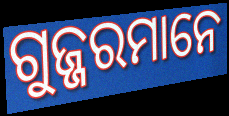
ଗୁଜ୍ଜରମାନେ